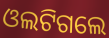
ଓଲଟିଗଲେ